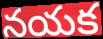
నయక